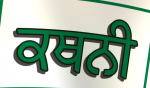
ਕਥਨੀ